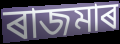
ৰাজমাৰ